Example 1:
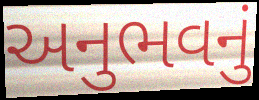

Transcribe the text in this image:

અનુભવનું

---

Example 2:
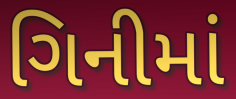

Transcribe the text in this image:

ગિનીમાં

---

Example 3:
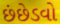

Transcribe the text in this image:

છંછેડવો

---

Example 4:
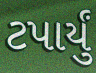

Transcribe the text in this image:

ટપાર્યું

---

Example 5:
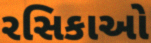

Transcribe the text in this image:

રસિકાઓ